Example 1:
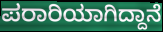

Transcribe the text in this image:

ಪರಾರಿಯಾಗಿದ್ದಾನೆ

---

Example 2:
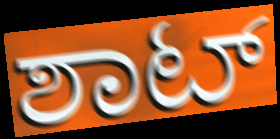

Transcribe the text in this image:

ಶಾಟ್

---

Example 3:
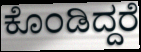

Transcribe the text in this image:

ಕೊಂಡಿದ್ದರೆ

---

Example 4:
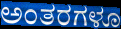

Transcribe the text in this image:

ಅಂತರಗಳೂ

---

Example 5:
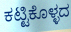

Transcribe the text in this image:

ಕಟ್ಟಿಕೊಳ್ಳದ